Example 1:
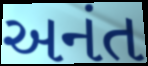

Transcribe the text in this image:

અનંત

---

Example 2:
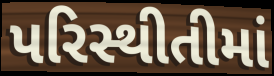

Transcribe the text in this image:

પરિસ્થીતીમાં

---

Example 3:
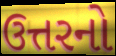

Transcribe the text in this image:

ઉત્તરનો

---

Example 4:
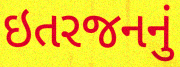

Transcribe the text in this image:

ઇતરજનનું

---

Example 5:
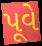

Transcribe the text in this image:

પૂવે